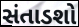
સંતાડશો